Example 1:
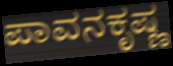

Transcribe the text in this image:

ಪಾವನಕೃಷ್ಣ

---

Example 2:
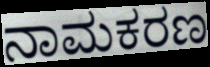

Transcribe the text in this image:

ನಾಮಕರಣ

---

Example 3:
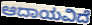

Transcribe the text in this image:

ಆದಾಯವಿದೆ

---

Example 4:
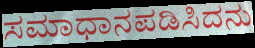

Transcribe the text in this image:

ಸಮಾಧಾನಪಡಿಸಿದನು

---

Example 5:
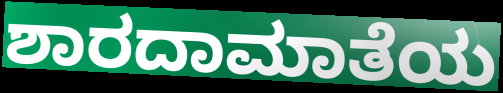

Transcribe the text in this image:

ಶಾರದಾಮಾತೆಯ